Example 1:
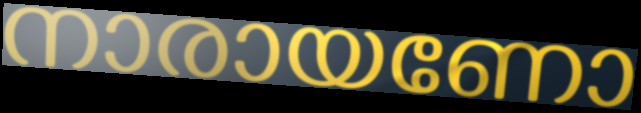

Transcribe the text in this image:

നാരായണോ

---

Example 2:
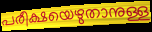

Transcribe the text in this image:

പരീക്ഷയെഴുതാനുള്ള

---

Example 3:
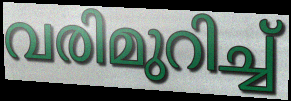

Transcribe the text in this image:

വരിമുറിച്ച്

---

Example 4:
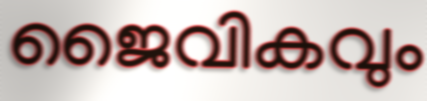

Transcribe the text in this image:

ജൈവികവും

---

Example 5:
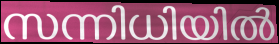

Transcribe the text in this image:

സന്നിധിയിൽ